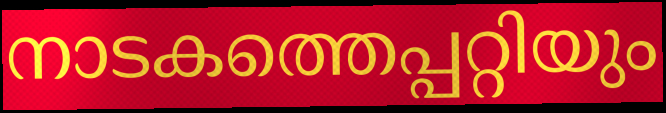
നാടകത്തെപ്പറ്റിയും